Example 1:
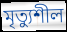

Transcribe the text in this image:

মৃত্যুশীল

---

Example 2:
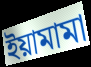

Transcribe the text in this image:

ইয়ামামা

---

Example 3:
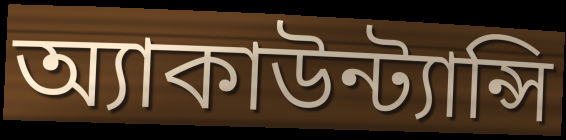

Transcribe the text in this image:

অ্যাকাউন্ট্যান্সি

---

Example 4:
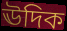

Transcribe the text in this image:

ঊদিক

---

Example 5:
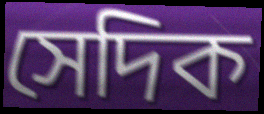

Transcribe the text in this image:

সেদিক